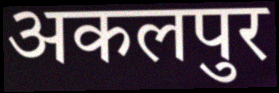
अकलपुर